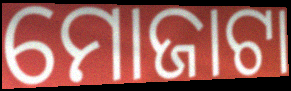
ମୋଜାଟା